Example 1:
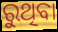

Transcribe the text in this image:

ରୁଥିବା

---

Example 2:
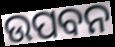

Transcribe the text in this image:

ଉପବନ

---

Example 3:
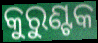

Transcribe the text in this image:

କୁରୁଣ୍ଟକ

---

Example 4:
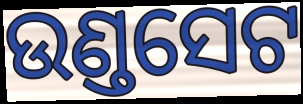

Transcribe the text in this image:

ଉଣ୍ଡସେଟ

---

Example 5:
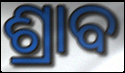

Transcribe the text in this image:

ଶ୍ରାବ